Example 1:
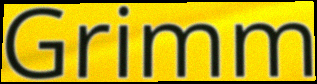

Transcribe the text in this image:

Grimm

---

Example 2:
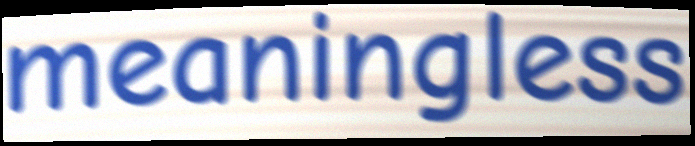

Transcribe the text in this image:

meaningless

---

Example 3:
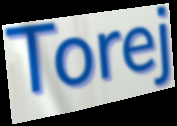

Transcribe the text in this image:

Torej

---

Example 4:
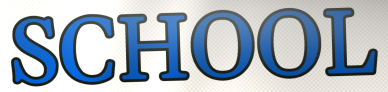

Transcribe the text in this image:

SCHOOL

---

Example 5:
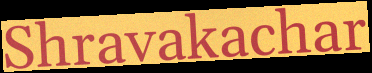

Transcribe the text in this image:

Shravakachar